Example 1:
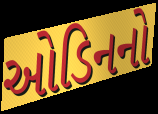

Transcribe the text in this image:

ઓડિનનો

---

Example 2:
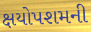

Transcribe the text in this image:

ક્ષયોપશમની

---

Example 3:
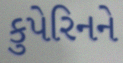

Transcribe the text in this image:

કુપેરિનને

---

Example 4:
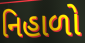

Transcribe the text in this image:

નિહાળો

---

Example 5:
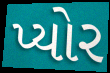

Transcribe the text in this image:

પ્યોર